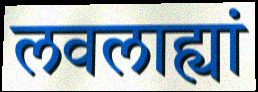
लवलाह्यां